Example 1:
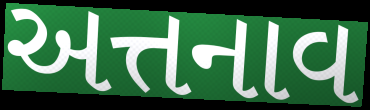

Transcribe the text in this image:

અત્તનાવ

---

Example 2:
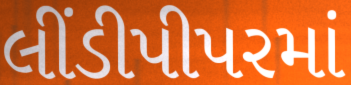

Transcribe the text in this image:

લીંડીપીપરમાં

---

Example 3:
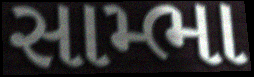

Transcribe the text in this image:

સામ્ભા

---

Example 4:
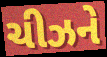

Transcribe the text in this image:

ચીઝને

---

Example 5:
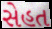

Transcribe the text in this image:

સેહત